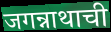
जगन्नाथाची